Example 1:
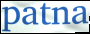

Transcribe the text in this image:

patna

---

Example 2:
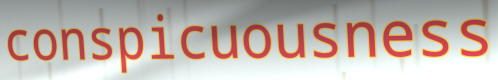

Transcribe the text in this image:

conspicuousness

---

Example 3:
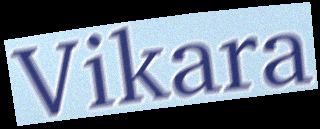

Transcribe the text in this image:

Vikara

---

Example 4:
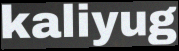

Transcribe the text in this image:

kaliyug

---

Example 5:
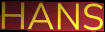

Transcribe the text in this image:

HANS